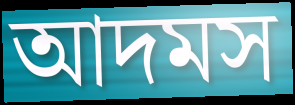
আদমস